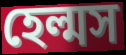
হেল্মস